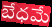
బేధమే